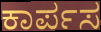
ಕಾರ್ಪಸ